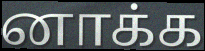
னாக்க